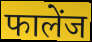
फालेंज